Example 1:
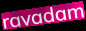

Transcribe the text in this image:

ravadam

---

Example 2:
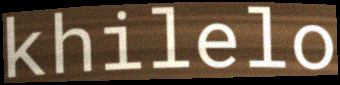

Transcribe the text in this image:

khilelo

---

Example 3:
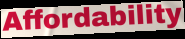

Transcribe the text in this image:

Affordability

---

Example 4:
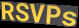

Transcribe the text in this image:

RSVPs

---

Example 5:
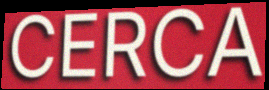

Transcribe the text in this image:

CERCA